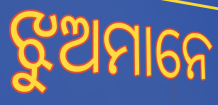
ଝୁଅମାନେ